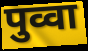
पुव्वा